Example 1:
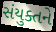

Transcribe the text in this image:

સંયુક્તને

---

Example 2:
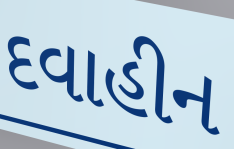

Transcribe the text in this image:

દવાહીન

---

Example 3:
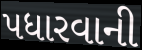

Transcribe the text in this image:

પધારવાની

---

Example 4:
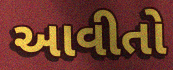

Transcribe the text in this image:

આવીતો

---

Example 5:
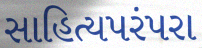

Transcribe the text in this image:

સાહિત્યપરંપરા